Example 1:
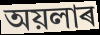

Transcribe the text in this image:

অয়লাৰ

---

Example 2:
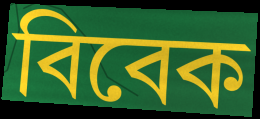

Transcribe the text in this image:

বিবেক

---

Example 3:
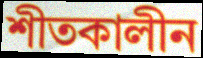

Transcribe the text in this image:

শীতকালীন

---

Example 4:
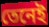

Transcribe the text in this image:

তেনেই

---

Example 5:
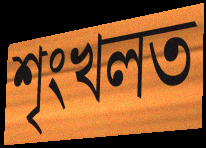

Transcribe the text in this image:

শৃংখলত